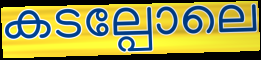
കടല്പോലെ